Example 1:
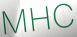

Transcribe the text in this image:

MHC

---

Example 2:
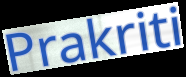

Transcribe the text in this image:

Prakriti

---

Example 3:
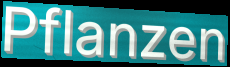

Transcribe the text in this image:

Pflanzen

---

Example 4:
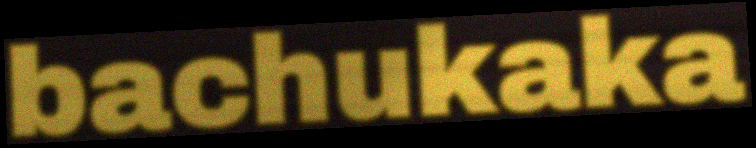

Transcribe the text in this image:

bachukaka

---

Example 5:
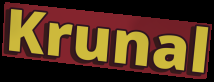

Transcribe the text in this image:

Krunal